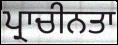
ਪ੍ਰਾਚੀਨਤਾ